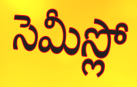
సెమీస్లో